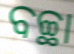
ବଚ୍ଛା